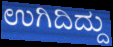
ಉಗಿದಿದ್ದು